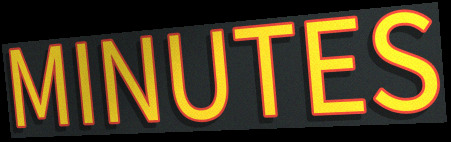
MINUTES